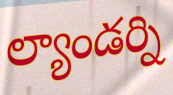
ల్యాండర్ని